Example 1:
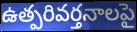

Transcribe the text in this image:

ఉత్పరివర్తనాలపై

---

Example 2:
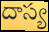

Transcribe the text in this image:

దాస్య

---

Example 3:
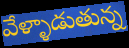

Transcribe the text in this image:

వేళ్ళాడుతున్న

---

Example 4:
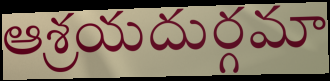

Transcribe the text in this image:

ఆశ్రయదుర్గమా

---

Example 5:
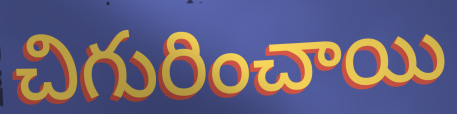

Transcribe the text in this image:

చిగురించాయి